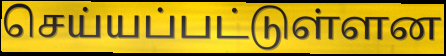
செய்யப்பட்டுள்ளன